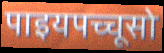
पाइयपच्चूसो